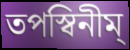
তপস্বিনীম্